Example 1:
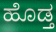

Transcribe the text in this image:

ಹೊಡ್ತ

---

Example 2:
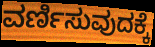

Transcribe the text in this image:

ವರ್ಣಿಸುವುದಕ್ಕೆ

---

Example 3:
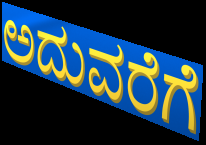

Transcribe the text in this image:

ಅದುವರೆಗೆ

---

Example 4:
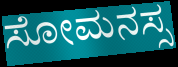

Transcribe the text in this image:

ಸೋಮನಸ್ಸ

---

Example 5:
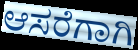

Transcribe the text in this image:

ಆಸರೆಗಾಗಿ